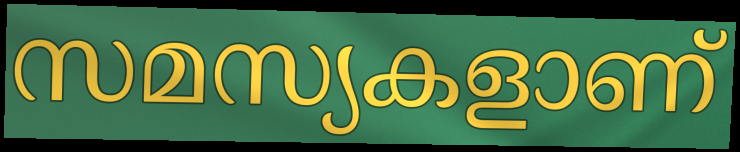
സമസ്യകളാണ്